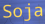
Soja